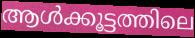
ആൾക്കൂട്ടത്തിലെ